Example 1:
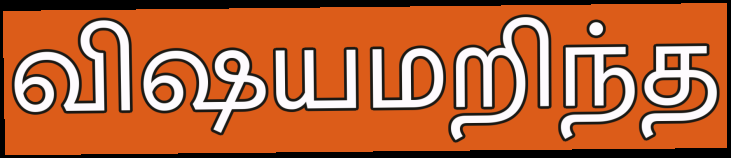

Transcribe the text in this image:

விஷயமறிந்த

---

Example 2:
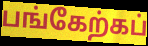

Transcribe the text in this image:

பங்கேற்கப்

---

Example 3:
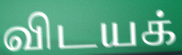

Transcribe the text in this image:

விடயக்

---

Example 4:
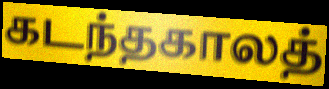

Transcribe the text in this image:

கடந்தகாலத்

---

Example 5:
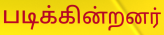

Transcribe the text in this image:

படிக்கின்றனர்